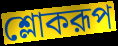
শ্লোকরূপ